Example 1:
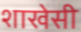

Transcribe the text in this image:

शाखेसी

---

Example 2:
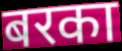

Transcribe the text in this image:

बरका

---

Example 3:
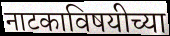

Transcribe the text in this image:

नाटकाविषयीच्या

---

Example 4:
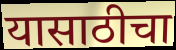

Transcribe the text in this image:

यासाठीचा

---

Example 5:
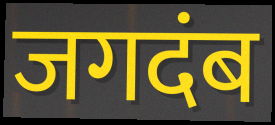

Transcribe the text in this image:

जगदंब